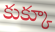
కుక్కూ